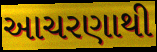
આચરણાથી